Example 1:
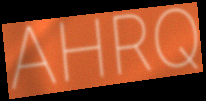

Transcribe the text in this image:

AHRQ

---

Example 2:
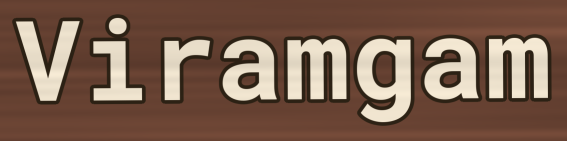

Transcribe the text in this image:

Viramgam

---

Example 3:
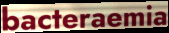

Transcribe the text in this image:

bacteraemia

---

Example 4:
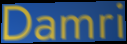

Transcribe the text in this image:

Damri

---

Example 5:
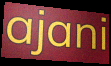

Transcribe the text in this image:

ajani